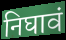
निघावं